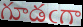
గూడఁగా